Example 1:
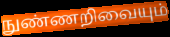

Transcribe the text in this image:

நுண்ணறிவையும்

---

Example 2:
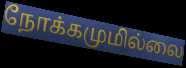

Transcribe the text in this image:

நோக்கமுமில்லை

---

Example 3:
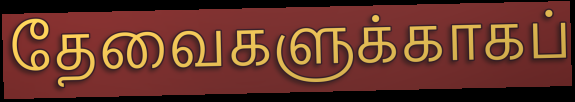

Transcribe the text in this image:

தேவைகளுக்காகப்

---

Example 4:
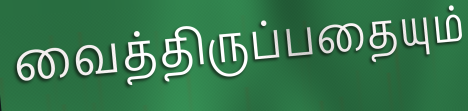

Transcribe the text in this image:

வைத்திருப்பதையும்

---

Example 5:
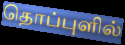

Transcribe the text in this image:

தொப்புளில்